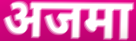
अजमा